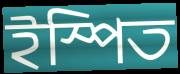
ইস্পিত